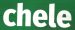
chele